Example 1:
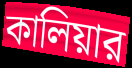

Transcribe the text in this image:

কালিয়ার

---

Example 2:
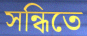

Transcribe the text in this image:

সন্ধিতে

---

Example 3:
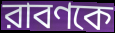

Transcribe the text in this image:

রাবণকে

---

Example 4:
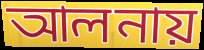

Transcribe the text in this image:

আলনায়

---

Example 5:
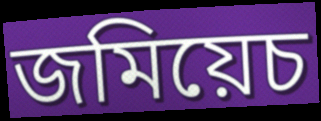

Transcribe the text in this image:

জমিয়েচ